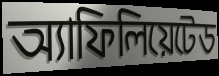
অ্যাফিলিয়েটেড